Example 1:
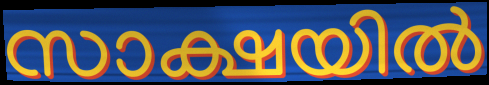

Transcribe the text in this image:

സാക്ഷയിൽ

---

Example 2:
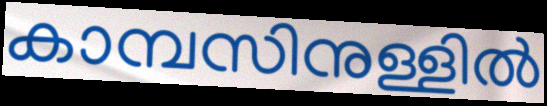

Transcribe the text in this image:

കാമ്പസിനുള്ളിൽ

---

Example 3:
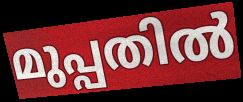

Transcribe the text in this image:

മുപ്പതിൽ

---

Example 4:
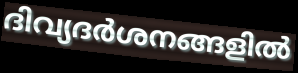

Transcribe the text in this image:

ദിവ്യദർശനങ്ങളിൽ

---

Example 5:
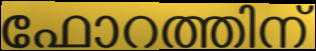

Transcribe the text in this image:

ഫോറത്തിന്